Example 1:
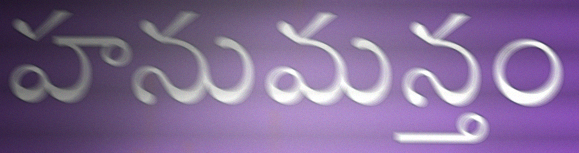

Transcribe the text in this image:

హనుమన్తం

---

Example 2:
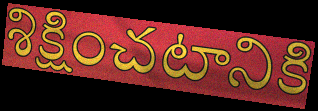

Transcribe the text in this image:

శిక్షించటానికి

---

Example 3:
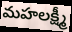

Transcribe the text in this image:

మహలక్ష్మీ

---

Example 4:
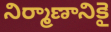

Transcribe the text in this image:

నిర్మాణానికై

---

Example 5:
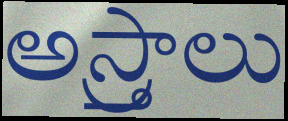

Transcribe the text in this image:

అస్ర్తాలు